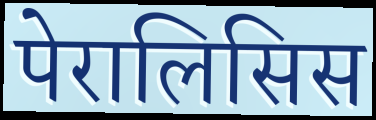
पेरालिसिस